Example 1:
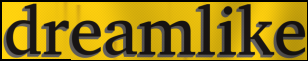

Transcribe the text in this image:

dreamlike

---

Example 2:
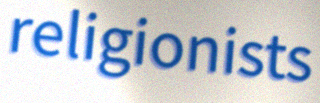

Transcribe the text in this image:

religionists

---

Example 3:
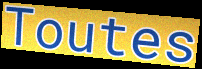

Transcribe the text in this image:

Toutes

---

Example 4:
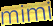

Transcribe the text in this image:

mimi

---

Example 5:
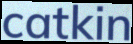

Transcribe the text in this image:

catkin